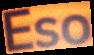
Eso